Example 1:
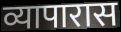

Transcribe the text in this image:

व्यापारास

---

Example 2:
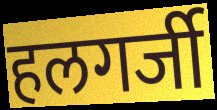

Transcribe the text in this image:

हलगर्जी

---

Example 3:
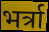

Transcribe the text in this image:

भर्त्रा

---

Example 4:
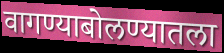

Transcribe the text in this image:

वागण्याबोलण्यातला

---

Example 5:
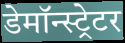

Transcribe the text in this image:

डेमॉन्स्ट्रेटर